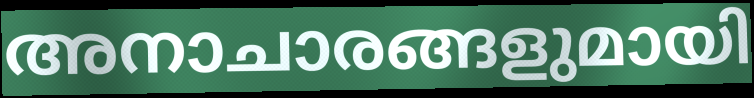
അനാചാരങ്ങളുമായി